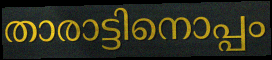
താരാട്ടിനൊപ്പം